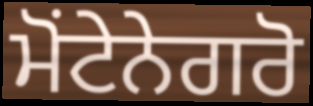
ਮੋਂਟੇਨੇਗਰੋ